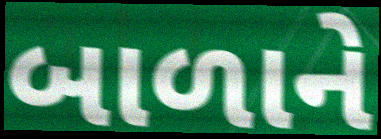
બાળાને